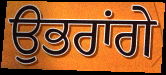
ਉਭਰਾਂਗੇ